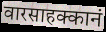
वारसाहक्कानं